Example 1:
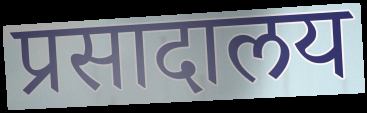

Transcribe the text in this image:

प्रसादालय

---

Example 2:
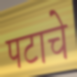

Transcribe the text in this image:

पटाचे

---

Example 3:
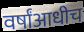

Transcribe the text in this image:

वर्षांआधीच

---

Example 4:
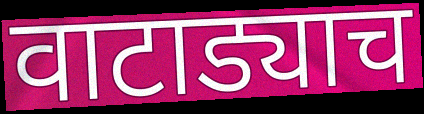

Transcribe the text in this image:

वाटाड्याच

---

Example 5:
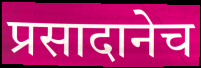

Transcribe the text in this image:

प्रसादानेच